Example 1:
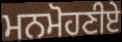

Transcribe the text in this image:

ਮਨਮੋਹਣੀਏ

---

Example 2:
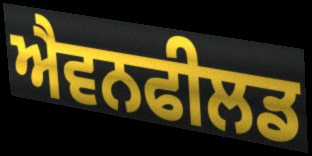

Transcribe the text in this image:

ਐਵਨਫੀਲਡ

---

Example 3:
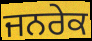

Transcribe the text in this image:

ਜਨਰੇਕ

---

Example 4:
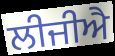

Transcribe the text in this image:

ਲੀਜੀਐ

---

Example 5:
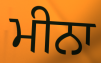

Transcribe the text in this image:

ਮੀਨਾ